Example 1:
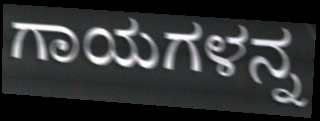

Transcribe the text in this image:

ಗಾಯಗಳನ್ನ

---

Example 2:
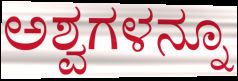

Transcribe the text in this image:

ಅಶ್ವಗಳನ್ನೂ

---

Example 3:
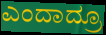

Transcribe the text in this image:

ಎಂದಾದ್ರೂ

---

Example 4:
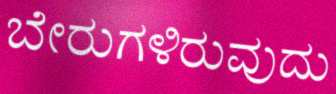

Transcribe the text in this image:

ಬೇರುಗಳಿರುವುದು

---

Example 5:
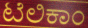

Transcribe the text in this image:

ಟೆಲಿಕಾಂ